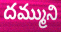
దమ్ముని